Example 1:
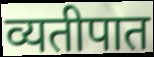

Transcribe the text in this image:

व्यतीपात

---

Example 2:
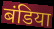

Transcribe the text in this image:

बंडिया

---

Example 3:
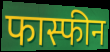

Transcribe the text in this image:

फास्फीन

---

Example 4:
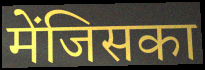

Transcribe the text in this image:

मेंजिसका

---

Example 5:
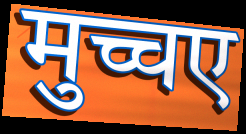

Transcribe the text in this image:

मुच्चए